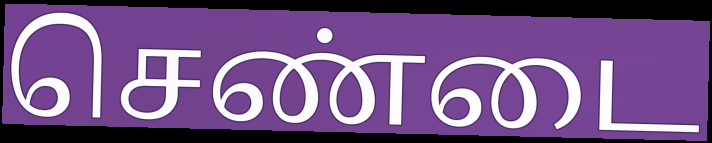
செண்டை